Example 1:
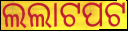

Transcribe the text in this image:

ଲଲାଟପଟ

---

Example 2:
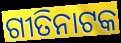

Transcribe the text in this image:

ଗୀତିନାଟକ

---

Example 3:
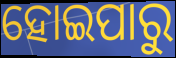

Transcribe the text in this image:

ହୋଇପାରୁ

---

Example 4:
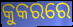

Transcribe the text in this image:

କୁକରରେ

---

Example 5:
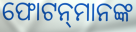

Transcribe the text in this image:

ଫୋଟନ୍‍ମାନଙ୍କ